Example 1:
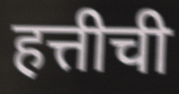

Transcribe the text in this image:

हत्तीची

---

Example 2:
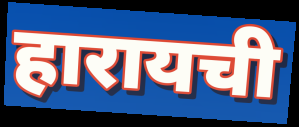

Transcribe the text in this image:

हारायची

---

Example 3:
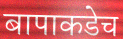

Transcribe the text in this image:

बापाकडेच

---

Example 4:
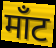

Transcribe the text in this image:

माँट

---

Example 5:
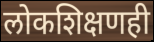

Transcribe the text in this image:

लोकशिक्षणही